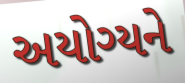
અયોગ્યને